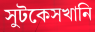
সুটকেসখানি